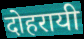
दोहरायी